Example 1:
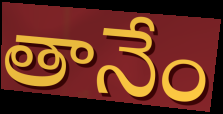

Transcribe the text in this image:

తానేం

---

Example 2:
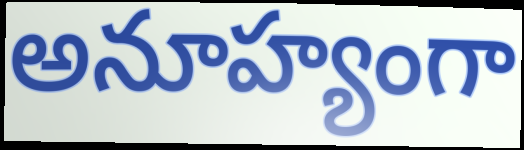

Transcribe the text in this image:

అనూహ్యంగా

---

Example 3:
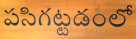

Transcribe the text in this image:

పసిగట్టడంలో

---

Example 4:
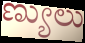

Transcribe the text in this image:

ణ్యులు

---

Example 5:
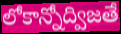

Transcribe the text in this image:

లోకాన్నోద్విజతే